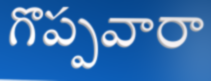
గొప్పవారా